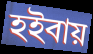
হইবায়